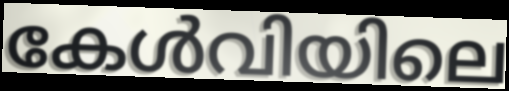
കേൾവിയിലെ